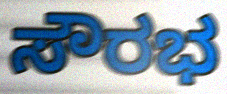
ಸೌರಭ